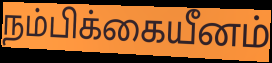
நம்பிக்கையீனம்